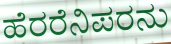
ಹೆರರೆನಿಪರನು